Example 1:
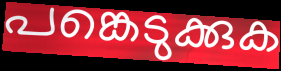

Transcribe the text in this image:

പങ്കെടുക്കുക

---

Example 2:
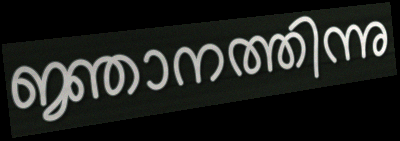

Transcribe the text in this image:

ജ്ഞാനത്തിന്നു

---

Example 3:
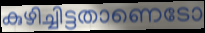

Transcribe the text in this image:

കുഴിച്ചിട്ടതാണെടോ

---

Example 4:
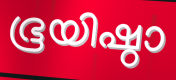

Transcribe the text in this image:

ഭൂയിഷ്ഠാ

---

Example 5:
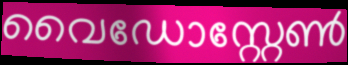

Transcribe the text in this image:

വൈഡോസ്റ്റേൺ